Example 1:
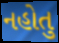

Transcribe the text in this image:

નહોતુ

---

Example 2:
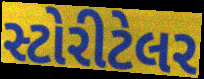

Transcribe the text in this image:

સ્ટોરીટેલર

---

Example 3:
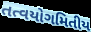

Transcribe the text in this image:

તત્વયોગમિતીય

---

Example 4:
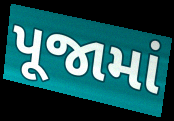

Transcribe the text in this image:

પૂજામાં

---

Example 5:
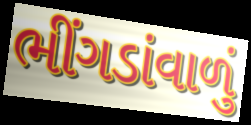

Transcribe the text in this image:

ભીંગડાંવાળું